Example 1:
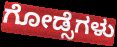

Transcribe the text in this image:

ಗೋಡ್ಸೆಗಳು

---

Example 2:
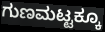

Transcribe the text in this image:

ಗುಣಮಟ್ಟಕ್ಕೂ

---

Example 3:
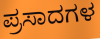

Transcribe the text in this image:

ಪ್ರಸಾದಗಳ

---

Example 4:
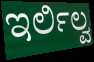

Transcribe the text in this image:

ಇರ್ಲಿಲ್ವ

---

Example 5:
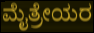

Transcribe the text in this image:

ಮೈತ್ರೇಯರ